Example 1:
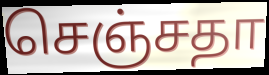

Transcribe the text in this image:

செஞ்சதா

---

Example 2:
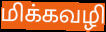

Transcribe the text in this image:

மிக்கவழி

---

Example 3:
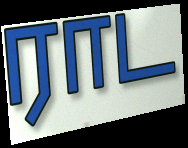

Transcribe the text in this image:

ராட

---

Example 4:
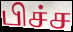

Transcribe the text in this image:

பிச்ச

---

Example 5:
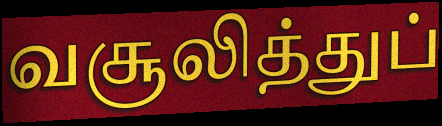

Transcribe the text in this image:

வசூலித்துப்